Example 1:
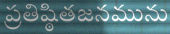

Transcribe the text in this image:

ప్రతిష్ఠితజనమును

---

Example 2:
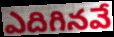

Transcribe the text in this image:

ఎదిగినవే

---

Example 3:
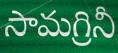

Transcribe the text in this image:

సామగ్రినీ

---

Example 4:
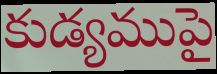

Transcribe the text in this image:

కుడ్యముపై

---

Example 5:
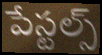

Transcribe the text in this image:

పేస్టల్స్